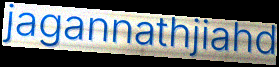
jagannathjiahd